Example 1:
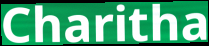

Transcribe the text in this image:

Charitha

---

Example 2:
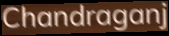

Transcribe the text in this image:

Chandraganj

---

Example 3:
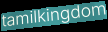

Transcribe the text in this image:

tamilkingdom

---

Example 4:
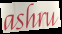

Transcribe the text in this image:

ashru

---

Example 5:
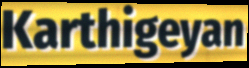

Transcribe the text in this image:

Karthigeyan